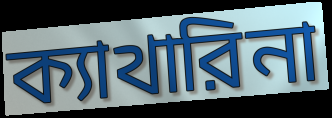
ক্যাথারিনা